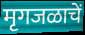
मृगजळाचें